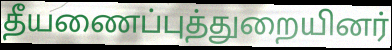
தீயணைப்புத்துறையினர்